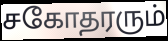
சகோதரரும்